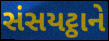
સંસયટ્ઠાને